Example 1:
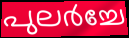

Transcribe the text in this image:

പുലർച്ചേ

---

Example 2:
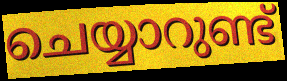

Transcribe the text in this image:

ചെയ്യാറുണ്ട്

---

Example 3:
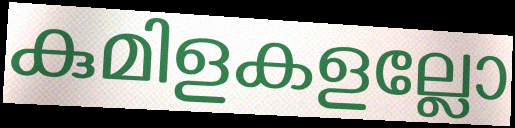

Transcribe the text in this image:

കുമിളകളല്ലോ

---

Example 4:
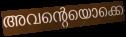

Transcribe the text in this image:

അവന്റെയൊക്കെ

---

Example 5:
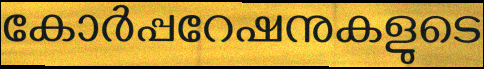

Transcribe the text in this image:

കോർപ്പറേഷനുകളുടെ